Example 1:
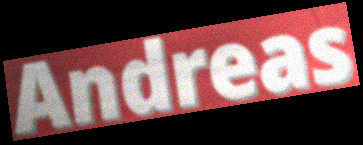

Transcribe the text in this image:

Andreas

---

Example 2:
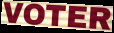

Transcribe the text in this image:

VOTER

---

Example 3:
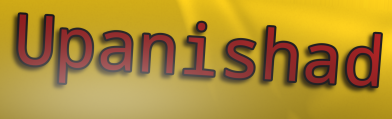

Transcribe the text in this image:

Upanishad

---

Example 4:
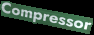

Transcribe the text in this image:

Compressor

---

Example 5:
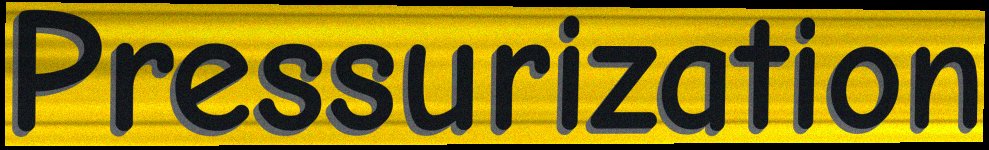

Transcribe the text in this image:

Pressurization